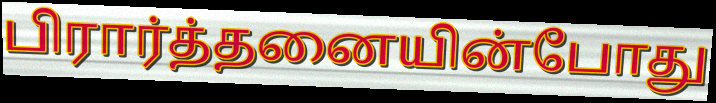
பிரார்த்தனையின்போது